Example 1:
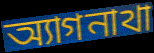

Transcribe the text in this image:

অ্যাগনাথা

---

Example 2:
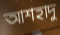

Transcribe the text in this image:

আশহাদু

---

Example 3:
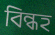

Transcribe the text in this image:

বিন্ধহ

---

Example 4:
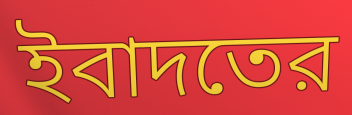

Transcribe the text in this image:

ইবাদতের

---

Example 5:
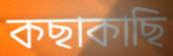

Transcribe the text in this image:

কছাকাছি